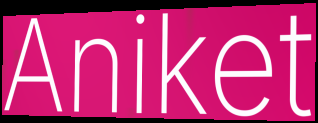
Aniket